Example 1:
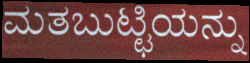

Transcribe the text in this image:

ಮತಬುಟ್ಟಿಯನ್ನು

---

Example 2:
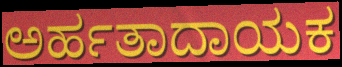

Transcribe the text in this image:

ಅರ್ಹತಾದಾಯಕ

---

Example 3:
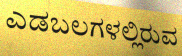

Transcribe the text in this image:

ಎಡಬಲಗಳಲ್ಲಿರುವ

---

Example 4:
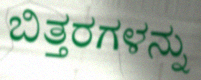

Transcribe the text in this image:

ಬಿತ್ತರಗಳನ್ನು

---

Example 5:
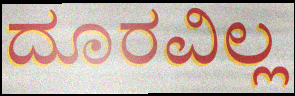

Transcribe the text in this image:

ದೂರವಿಲ್ಲ